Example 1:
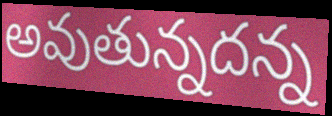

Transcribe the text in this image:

అవుతున్నదన్న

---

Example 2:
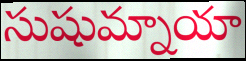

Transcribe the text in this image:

సుషుమ్నాయా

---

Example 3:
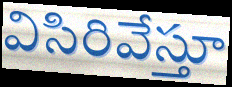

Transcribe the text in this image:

విసిరివేస్తూ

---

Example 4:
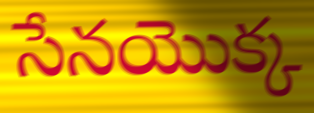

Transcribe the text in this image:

సేనయొక్క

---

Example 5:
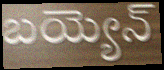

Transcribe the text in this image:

బయ్యెన్